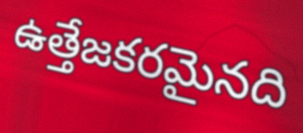
ఉత్తేజకరమైనది